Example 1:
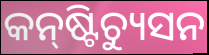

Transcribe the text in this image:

କନ୍‍ଷ୍ଟିଚ୍ୟୁସନ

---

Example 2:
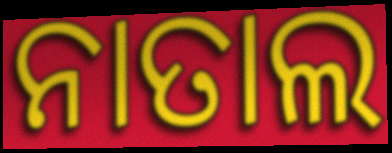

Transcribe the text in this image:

ନାତାଲ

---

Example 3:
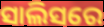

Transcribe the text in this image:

ସାଲିସରେ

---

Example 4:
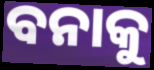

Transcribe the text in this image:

ବନାକୁ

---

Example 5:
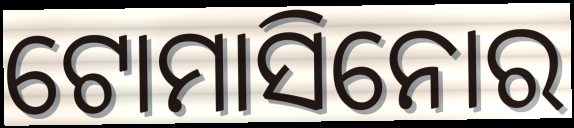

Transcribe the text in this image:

ଟୋମାସିନୋର